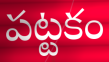
పట్టకం